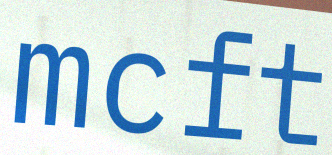
mcft